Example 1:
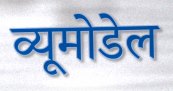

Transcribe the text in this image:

व्यूमोडेल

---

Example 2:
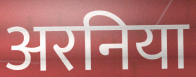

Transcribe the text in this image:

अरनिया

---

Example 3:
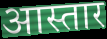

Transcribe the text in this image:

आस्तार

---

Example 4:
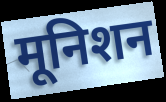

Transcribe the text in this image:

मूनिशन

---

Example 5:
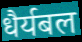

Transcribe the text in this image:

धैर्यबल